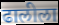
ढालीला